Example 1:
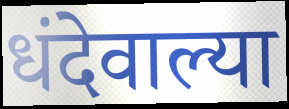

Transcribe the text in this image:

धंदेवाल्या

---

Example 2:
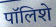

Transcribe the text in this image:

पॉलिशे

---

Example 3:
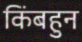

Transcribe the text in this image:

किंबहुन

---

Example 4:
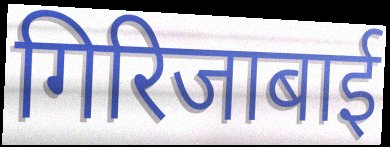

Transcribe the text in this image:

गिरिजाबाई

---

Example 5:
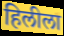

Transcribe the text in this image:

हिलीला